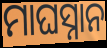
ମାଘସ୍ନାନ